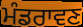
ਮੰਡਰਾਵਣ